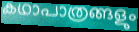
കഥാപാത്രങ്ങളും